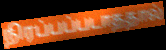
நிரப்பப்படாததால்